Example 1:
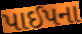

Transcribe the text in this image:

પાઈપના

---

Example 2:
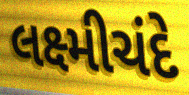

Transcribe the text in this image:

લક્ષ્મીચંદે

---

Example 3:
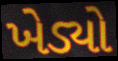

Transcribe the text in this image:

ખેડ્યો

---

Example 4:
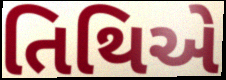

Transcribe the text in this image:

તિથિએ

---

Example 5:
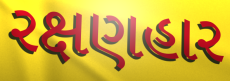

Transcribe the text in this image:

રક્ષણહાર